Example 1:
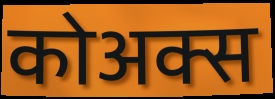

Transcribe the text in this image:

कोअक्स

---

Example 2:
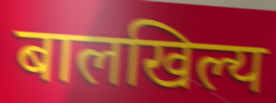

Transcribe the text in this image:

बालखिल्य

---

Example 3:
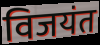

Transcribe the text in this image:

विजयंत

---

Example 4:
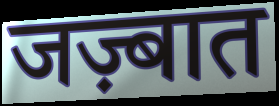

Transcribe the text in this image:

जज़्बात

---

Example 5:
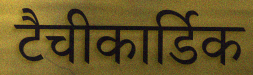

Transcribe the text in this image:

टैचीकार्डिक